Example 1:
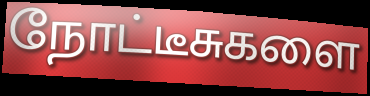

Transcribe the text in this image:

நோட்டீசுகளை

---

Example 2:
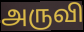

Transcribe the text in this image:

அருவி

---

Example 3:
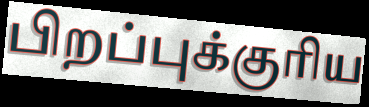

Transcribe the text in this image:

பிறப்புக்குரிய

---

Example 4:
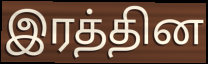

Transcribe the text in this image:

இரத்தின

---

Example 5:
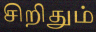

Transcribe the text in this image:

சிறிதும்